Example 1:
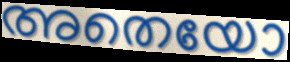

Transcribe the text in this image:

അതെയോ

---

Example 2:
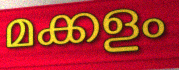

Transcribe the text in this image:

മക്കളം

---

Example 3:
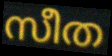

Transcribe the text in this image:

സീത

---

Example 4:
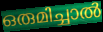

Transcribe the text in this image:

ഒരുമിച്ചാൽ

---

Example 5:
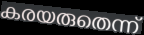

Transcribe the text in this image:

കരയരുതെന്ന്